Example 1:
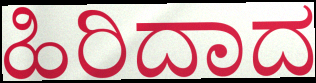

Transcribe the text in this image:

ಹಿರಿದಾದ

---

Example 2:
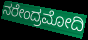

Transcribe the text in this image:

ನರೇಂದ್ರಮೋದಿ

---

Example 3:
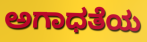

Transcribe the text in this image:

ಅಗಾಧತೆಯ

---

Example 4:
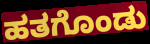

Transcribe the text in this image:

ಹತಗೊಂಡು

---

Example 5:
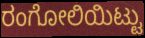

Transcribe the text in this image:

ರಂಗೋಲಿಯಿಟ್ಟು